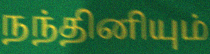
நந்தினியும்